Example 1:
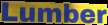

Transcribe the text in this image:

Lumber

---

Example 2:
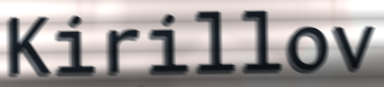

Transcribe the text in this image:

Kirillov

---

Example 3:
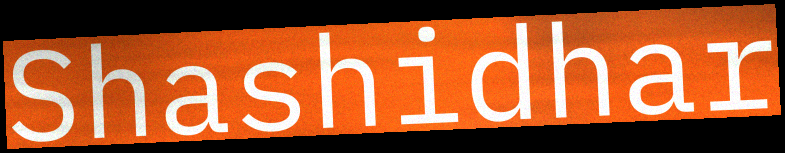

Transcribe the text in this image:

Shashidhar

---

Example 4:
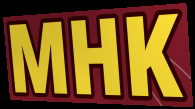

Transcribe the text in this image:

MHK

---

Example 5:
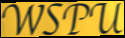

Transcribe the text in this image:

WSPU